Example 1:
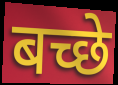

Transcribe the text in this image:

बच्छे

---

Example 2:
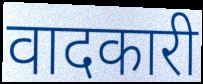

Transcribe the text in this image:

वादकारी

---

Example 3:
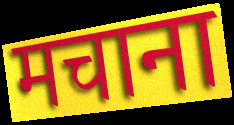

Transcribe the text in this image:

मचाना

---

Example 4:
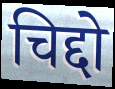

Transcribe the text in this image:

चिद्दो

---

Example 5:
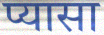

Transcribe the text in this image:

प्यासा